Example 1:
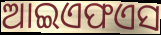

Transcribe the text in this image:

ଆଇଏଫଏସ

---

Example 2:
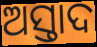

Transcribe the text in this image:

ଅସ୍ତାଦ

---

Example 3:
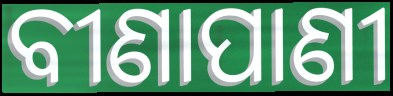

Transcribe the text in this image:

ବୀଣାପାଣୀ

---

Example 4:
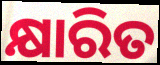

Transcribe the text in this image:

କ୍ଷାରିତ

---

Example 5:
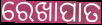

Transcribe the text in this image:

ରେଖାପାତ